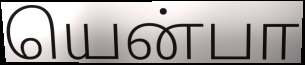
யென்பா